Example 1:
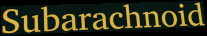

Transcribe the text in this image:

Subarachnoid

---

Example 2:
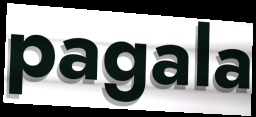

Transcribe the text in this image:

pagala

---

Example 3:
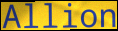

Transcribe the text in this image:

Allion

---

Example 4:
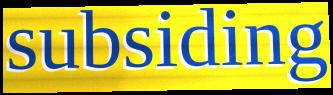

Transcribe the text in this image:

subsiding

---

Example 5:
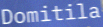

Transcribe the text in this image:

Domitila